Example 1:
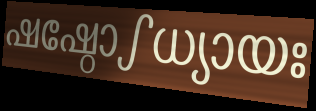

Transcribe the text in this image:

ഷഷ്ഠോഽധ്യായഃ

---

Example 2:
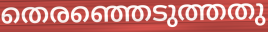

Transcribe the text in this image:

തെരഞ്ഞെടുത്തതു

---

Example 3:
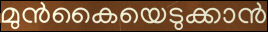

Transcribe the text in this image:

മുൻകൈയെടുക്കാൻ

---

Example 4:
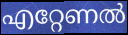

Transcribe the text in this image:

എറ്റേണൽ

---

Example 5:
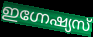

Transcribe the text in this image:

ഇഗ്നേഷ്യസ്